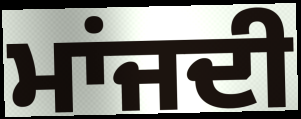
ਮਾਂਜਦੀ